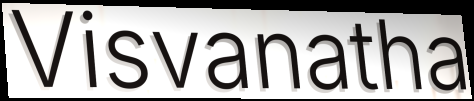
Visvanatha